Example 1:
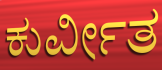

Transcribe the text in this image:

ಕುರ್ವೀತ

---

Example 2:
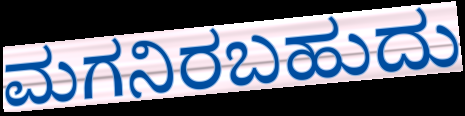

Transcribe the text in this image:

ಮಗನಿರಬಹುದು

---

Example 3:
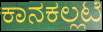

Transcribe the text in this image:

ಕಾನಕಲ್ಲಟೆ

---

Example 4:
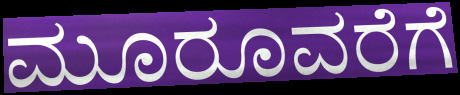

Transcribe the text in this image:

ಮೂರೂವರೆಗೆ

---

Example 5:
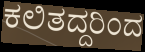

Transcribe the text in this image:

ಕಲಿತದ್ದರಿಂದ